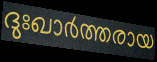
ദുഃഖാർത്തരായ